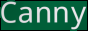
Canny